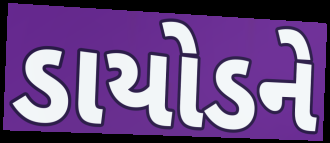
ડાયોડને